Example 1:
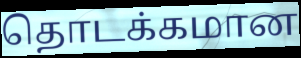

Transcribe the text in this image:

தொடக்கமான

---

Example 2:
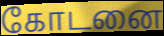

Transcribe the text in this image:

கோடனை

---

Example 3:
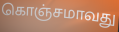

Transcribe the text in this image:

கொஞ்சமாவது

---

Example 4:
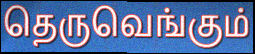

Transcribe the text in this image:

தெருவெங்கும்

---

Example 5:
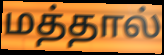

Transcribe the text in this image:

மத்தால்